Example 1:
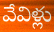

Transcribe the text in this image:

వేవిళ్లు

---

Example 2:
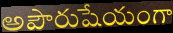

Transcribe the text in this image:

అపౌరుషేయంగా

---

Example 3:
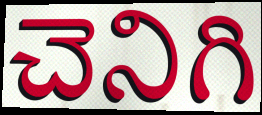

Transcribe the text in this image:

చెనిగి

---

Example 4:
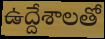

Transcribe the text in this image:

ఉద్దేశాలతో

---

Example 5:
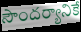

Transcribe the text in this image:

సౌందర్యానికే